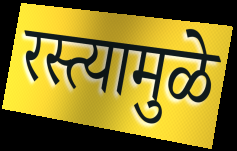
रस्त्यामुळे